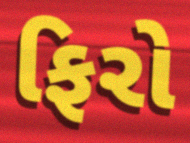
ફિરો